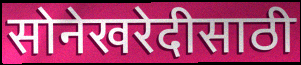
सोनेखरेदीसाठी